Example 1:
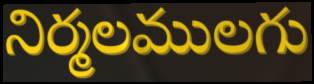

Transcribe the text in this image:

నిర్మలములగు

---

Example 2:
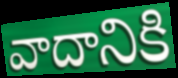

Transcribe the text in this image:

వాదానికి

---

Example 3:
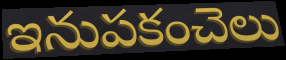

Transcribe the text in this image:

ఇనుపకంచెలు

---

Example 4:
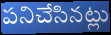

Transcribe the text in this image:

పనిచేసినట్లు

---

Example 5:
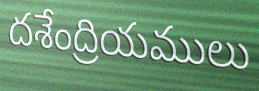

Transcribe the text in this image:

దశేంద్రియములు